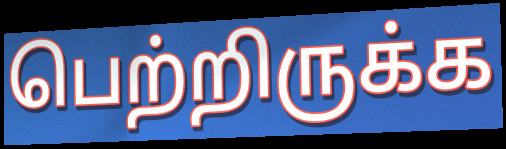
பெற்றிருக்க